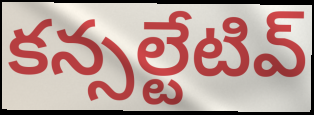
కన్సల్టేటివ్